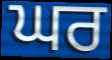
ਘਰ